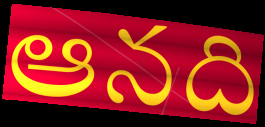
ఆనది